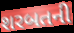
શરબતની